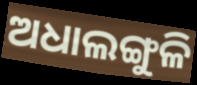
ଅଧାଲଙ୍ଗୁଳି